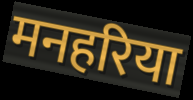
मनहरिया